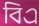
বিএ